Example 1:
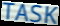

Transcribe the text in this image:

TASK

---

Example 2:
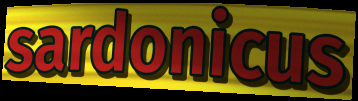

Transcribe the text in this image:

sardonicus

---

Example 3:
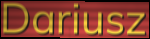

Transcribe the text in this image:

Dariusz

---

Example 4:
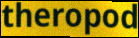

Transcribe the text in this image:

theropod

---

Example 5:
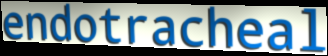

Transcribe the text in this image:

endotracheal